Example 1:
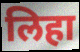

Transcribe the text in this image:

लिहा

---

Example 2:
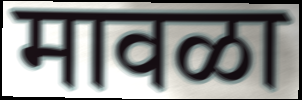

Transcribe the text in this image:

मावळा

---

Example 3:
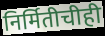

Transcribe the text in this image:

निर्मितीचीही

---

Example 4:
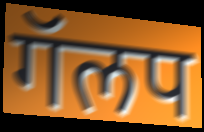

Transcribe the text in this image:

गॅलप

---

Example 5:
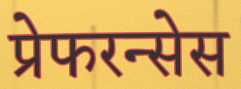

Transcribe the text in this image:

प्रेफरन्सेस